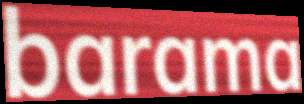
barama